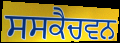
ਸਸਕੈਚਵਨ